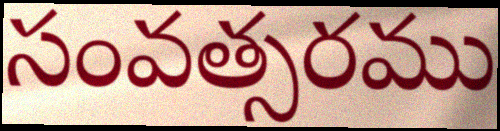
సంవత్సరము